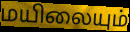
மயிலையும்